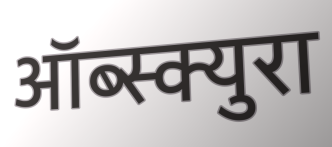
ऑब्स्क्युरा